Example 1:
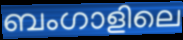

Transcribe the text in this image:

ബംഗാളിലെ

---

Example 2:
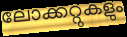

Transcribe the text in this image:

ലോക്കറ്റുകളും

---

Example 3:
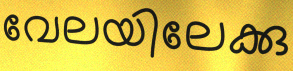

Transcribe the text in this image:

വേലയിലേക്കു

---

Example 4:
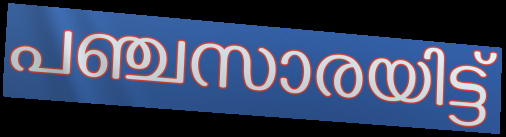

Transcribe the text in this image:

പഞ്ചസാരയിട്ട്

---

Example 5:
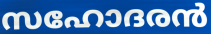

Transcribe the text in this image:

സഹോദരൻ